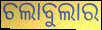
ଚଲାବୁଲାର